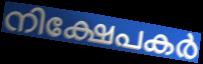
നിക്ഷേപകർ